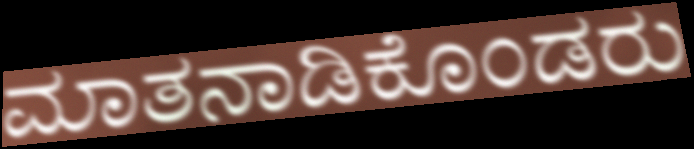
ಮಾತನಾಡಿಕೊಂಡರು